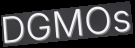
DGMOs